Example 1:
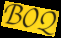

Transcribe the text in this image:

BOQ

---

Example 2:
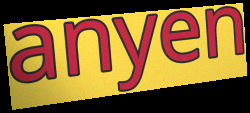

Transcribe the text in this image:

anyen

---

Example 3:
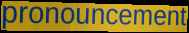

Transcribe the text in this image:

pronouncement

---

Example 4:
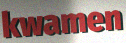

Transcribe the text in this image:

kwamen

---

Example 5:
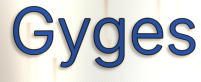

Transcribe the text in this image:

Gyges